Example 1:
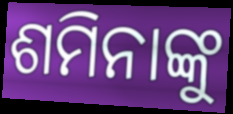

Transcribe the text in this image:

ଶମିନାଙ୍କୁ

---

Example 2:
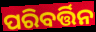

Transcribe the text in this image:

ପରିବର୍ତ୍ତିନ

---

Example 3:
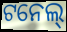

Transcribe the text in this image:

ଟନେଲ୍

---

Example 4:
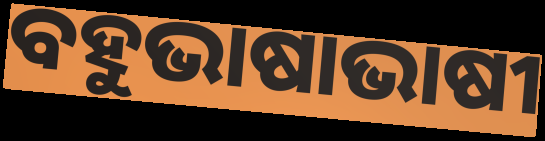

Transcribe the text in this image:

ବହୁଭାଷାଭାଷୀ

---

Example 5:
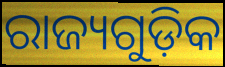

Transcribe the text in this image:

ରାଜ୍ୟଗୁଡ଼ିକ